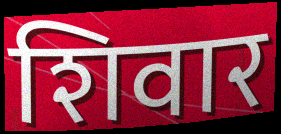
शिवार